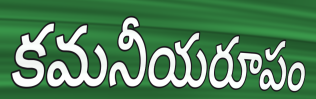
కమనీయరూపం